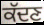
ਕੱਦਣ